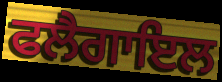
ਫਲੈਗਾਇਲ